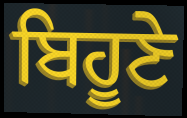
ਬਿਹੂਣੇ